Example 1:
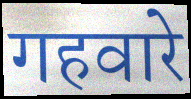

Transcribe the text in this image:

गहवारे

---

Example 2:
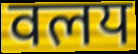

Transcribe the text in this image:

वलय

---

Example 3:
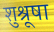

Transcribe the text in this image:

शुश्रूषा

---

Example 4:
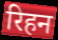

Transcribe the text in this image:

रिहन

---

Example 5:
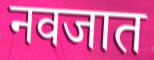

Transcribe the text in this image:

नवजात